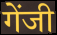
गेंजी